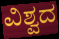
ವಿಶ್ವದ